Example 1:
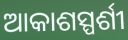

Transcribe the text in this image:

ଆକାଶସ୍ପର୍ଶୀ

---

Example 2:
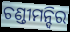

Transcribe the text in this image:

ଚଣ୍ଡୀମନ୍ଦିର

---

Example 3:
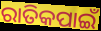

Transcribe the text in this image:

ରାତିକପାଇଁ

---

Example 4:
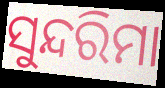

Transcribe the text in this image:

ସୁନ୍ଦରିମା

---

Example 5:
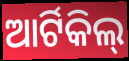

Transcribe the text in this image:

ଆର୍ଟିକିଲ୍